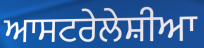
ਆਸਟਰੇਲੇਸ਼ੀਆ